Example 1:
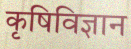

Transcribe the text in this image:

कृषिविज्ञान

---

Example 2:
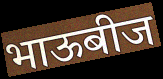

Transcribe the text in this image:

भाऊबीज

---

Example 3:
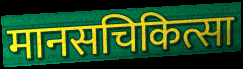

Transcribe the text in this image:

मानसचिकित्सा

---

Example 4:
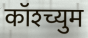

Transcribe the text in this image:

कॉश्च्युम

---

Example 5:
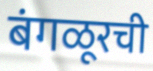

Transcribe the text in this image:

बंगळूरची